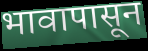
भावापासून